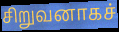
சிறுவனாகச்